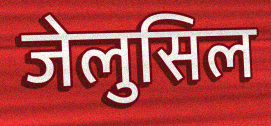
जेलुसिल